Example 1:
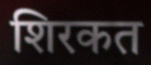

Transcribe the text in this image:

शिरकत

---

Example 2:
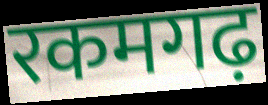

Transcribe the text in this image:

रकमगढ़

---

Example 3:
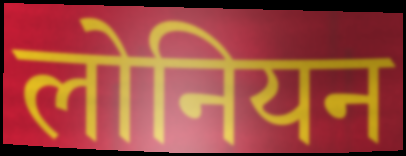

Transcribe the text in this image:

लोनियन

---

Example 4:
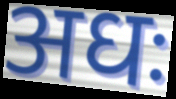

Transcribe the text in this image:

अधः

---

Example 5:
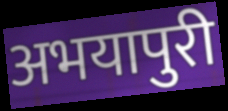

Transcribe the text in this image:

अभयापुरी